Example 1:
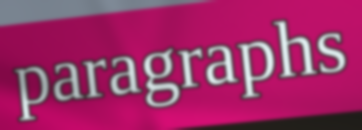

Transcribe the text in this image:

paragraphs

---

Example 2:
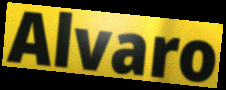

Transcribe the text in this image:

Alvaro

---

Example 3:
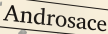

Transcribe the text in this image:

Androsace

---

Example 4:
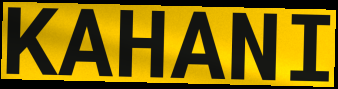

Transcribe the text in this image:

KAHANI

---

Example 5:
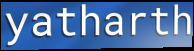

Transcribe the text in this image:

yatharth